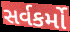
સર્વકર્મો